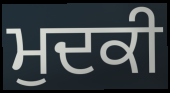
ਮੁਦਕੀ